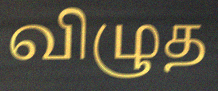
விழுத